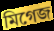
মিগেজ